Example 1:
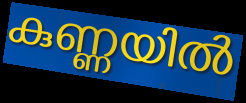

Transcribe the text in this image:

കുണ്ണയിൽ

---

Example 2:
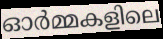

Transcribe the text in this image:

ഓർമ്മകളിലെ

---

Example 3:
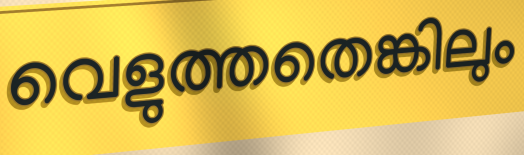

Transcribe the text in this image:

വെളുത്തതെങ്കിലും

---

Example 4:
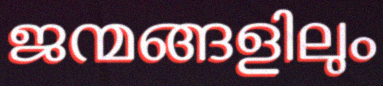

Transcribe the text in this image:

ജന്മങ്ങളിലും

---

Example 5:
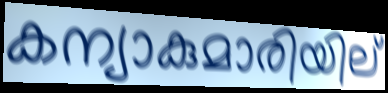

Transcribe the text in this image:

കന്യാകുമാരിയില്